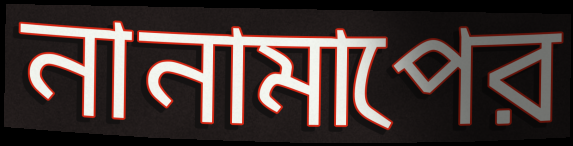
নানামাপের